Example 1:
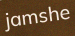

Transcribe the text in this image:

jamshe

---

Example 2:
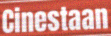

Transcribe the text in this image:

Cinestaan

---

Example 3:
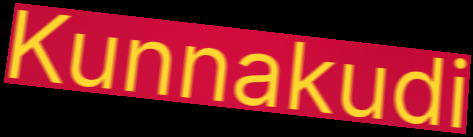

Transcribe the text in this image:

Kunnakudi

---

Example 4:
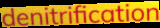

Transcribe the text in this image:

denitrification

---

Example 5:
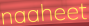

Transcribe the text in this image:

naaheet